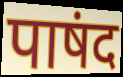
पाषंद